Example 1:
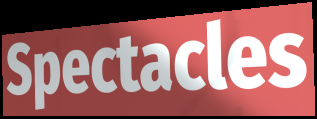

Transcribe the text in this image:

Spectacles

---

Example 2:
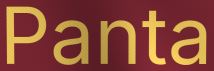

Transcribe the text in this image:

Panta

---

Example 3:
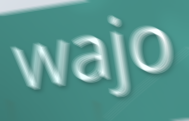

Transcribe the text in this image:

wajo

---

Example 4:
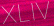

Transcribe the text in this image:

XLIV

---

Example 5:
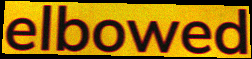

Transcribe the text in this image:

elbowed